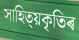
সাহিত্য়কৃতিৰ